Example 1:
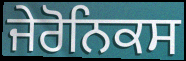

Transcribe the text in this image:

ਜੇਰੋਨਿਕਸ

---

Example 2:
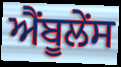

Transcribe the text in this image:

ਐਂਬੂਲੇਂਸ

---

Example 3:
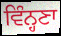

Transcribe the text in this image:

ਵਿੰਨ੍ਹਣਾ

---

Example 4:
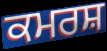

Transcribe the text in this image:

ਕਮਰਸ਼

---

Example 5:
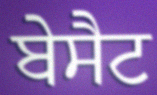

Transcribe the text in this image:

ਬੇਸੈਟ